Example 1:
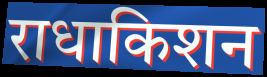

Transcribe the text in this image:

राधाकिशन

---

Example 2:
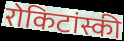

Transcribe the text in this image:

रोकिटांस्की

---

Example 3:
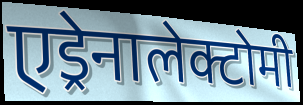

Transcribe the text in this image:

एड्रेनालेक्टोमी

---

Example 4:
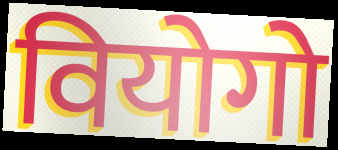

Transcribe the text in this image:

वियोगो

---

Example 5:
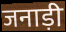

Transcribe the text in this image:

जनाड़ी